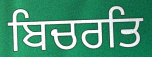
ਬਿਚਰਤਿ